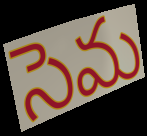
సెమ